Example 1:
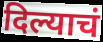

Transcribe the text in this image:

दिल्याचं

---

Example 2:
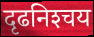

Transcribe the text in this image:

दृढनिश्‍चय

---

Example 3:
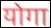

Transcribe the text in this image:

योगा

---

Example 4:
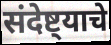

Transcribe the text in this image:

संदेष्ट्याचे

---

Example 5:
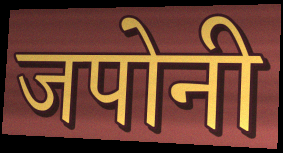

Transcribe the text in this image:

जपोनी